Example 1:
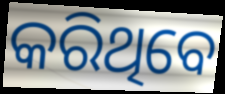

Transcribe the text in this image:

କରିଥିବେ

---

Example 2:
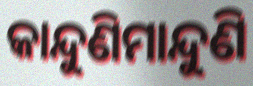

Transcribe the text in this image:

କାନ୍ଦୁଣିମାନ୍ଦୁଣି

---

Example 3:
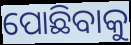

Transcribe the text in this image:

ପୋଛିବାକୁ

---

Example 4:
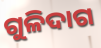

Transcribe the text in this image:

ଗୁଳିଦାଗ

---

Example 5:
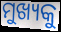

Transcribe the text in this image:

ମୁଖ୍ୟକୁ